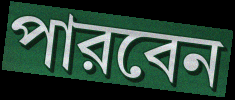
পারবেন